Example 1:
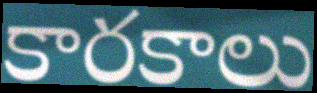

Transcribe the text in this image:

కారకాలు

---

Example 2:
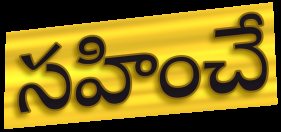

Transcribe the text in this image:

సహించే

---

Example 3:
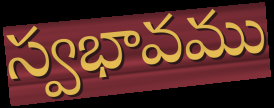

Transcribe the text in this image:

స్వభావము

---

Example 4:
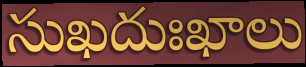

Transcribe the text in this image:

సుఖదుఃఖాలు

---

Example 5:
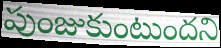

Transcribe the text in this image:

పుంజుకుంటుందని